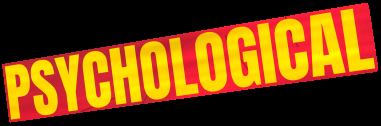
PSYCHOLOGICAL